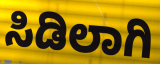
ಸಿಡಿಲಾಗಿ